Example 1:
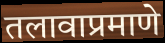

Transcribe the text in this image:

तलावाप्रमाणे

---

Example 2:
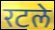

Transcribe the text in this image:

रटले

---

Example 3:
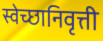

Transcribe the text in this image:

स्वेच्छानिवृत्ती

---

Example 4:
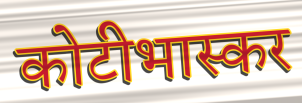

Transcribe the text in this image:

कोटीभास्कर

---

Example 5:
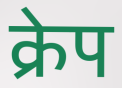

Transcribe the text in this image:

क्रेप